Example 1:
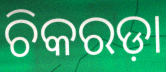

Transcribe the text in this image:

ଚିକରଡ଼ା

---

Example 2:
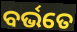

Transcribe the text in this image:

ବର୍ଭତେ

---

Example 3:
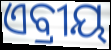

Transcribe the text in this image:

ଏବ୍ରୀୟ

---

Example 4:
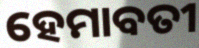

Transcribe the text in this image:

ହେମାବତୀ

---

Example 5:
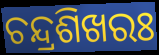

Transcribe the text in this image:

ଚନ୍ଦ୍ରଶିଖରଃ